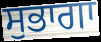
ਸੁਭਾਗਾ